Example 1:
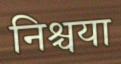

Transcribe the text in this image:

निश्चया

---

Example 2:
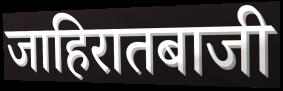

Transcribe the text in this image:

जाहिरातबाजी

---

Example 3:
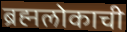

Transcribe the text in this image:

ब्रह्मलोकाची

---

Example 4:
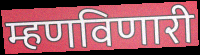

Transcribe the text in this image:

म्हणविणारी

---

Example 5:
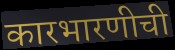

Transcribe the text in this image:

कारभारणीची